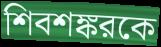
শিবশঙ্করকে